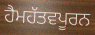
ਹੈਮਹੱਤਵਪੂਰਨ